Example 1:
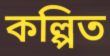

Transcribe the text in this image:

কল্পিত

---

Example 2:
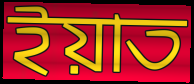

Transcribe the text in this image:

ইয়াত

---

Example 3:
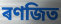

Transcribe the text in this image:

ৰণজিত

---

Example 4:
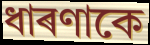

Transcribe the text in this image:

ধাৰণাকে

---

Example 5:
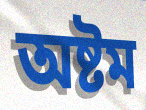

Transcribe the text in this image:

অষ্টম